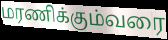
மரணிக்கும்வரை